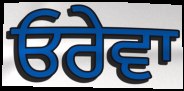
ਓਰੇਵਾ